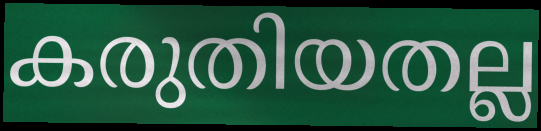
കരുതിയതല്ല